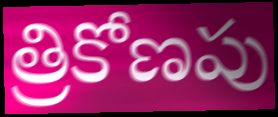
త్రికోణపు